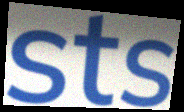
sts